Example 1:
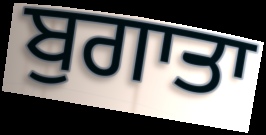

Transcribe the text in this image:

ਬੁਗਾਤਾ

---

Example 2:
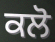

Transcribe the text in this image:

ਕਲੋ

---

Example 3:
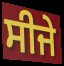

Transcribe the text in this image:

ਸੀਜੇ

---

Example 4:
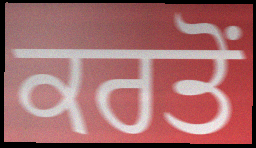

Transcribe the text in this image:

ਕਰਤੋਂ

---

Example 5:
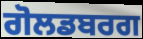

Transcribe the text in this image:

ਗੋਲਡਬਰਗ